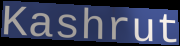
Kashrut